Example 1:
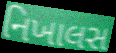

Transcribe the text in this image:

નિખાલસ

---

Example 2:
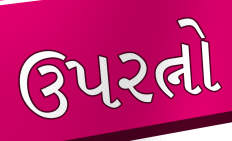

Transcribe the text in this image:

ઉપરત્નો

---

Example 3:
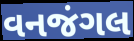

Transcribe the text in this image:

વનજંગલ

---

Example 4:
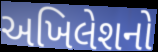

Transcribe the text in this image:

અખિલેશનો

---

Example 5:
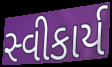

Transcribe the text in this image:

સ્વીકાર્ય